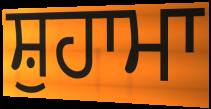
ਸ਼ੁਹਾਮਾ